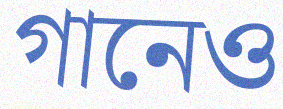
গানেও